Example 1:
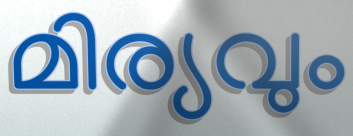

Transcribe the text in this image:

മിര്യവും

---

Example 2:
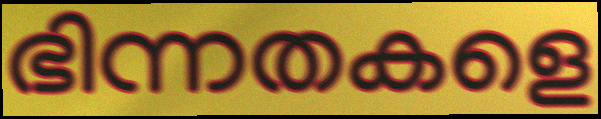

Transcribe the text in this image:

ഭിന്നതകളെ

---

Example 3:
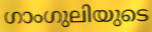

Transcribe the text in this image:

ഗാംഗുലിയുടെ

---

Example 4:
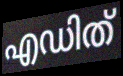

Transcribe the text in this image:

എഡിത്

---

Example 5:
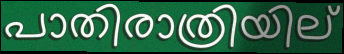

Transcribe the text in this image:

പാതിരാത്രിയില്